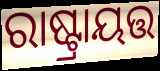
ରାଷ୍ଟ୍ରାୟତ୍ତ